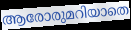
ആരോരുമറിയാതെ